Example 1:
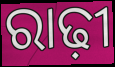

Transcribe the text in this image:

ରାଢ଼ୀ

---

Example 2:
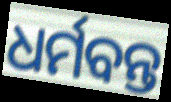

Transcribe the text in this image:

ଧର୍ମବନ୍ତ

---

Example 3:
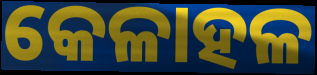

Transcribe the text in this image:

କେଳାହଳ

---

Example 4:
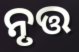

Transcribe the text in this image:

ନୃତ୍ତ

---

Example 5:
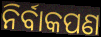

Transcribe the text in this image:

ନିର୍ବାକପଣ